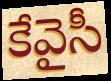
కేవైసీ